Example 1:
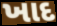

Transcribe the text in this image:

ખાદ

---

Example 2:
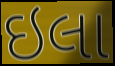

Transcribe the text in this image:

ઇલા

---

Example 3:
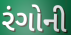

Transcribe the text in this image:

રંગોની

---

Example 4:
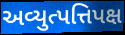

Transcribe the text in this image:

અવ્યુત્પત્તિપક્ષ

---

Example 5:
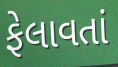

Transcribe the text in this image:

ફેલાવતાં